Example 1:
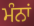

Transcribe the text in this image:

ਮੰਨਾਂ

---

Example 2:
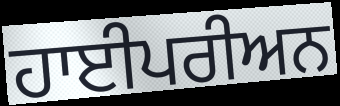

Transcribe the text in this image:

ਹਾਈਪਰੀਅਨ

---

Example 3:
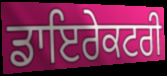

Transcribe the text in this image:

ਡਾਇਰੇਕਟਰੀ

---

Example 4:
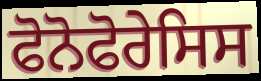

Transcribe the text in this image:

ਫੋਨੋਫੋਰੇਸਿਸ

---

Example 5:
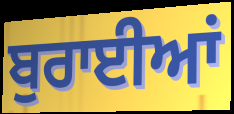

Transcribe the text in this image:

ਬੁਰਾਈਆਂ